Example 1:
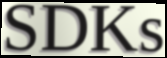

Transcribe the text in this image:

SDKs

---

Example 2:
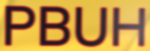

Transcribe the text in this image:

PBUH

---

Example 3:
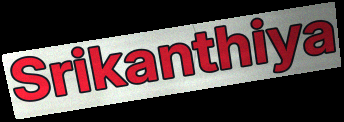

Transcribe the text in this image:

Srikanthiya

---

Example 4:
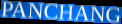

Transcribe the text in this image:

PANCHANG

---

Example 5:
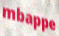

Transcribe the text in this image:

mbappe